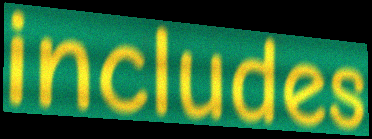
includes